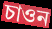
চাওন